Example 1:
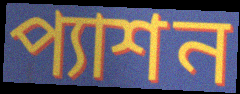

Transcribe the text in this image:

প্যাশন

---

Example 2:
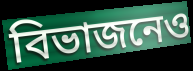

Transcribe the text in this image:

বিভাজনেও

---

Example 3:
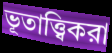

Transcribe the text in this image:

ভূতাত্ত্বিকরা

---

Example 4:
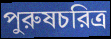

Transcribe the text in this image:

পুরুষচরিত্র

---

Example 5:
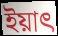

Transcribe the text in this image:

ইয়াৎ